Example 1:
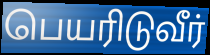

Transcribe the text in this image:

பெயரிடுவீர்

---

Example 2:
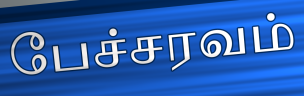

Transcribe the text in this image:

பேச்சரவம்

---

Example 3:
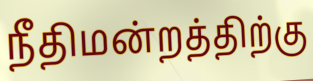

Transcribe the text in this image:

நீதிமன்றத்திற்கு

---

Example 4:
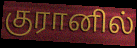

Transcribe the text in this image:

குரானில்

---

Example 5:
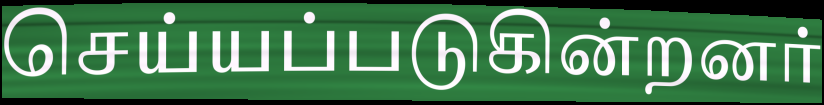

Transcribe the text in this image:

செய்யப்படுகின்றனர்